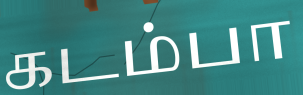
கடம்பா